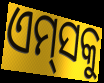
ଏମ୍‌ସକୁ